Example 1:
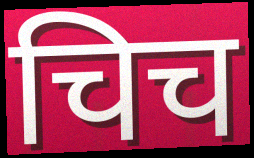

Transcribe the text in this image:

चिच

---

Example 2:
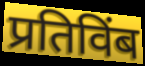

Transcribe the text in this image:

प्रतिविंब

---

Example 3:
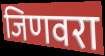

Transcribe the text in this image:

जिणवरा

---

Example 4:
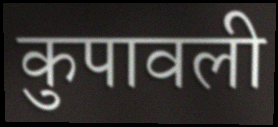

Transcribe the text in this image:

कुपावली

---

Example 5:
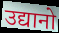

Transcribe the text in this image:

उद्यानो